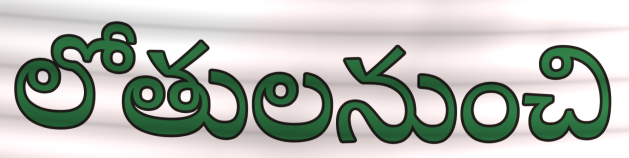
లోతులనుంచి